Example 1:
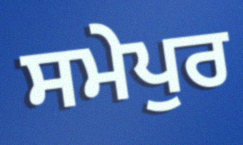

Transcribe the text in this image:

ਸਮੇਪੁਰ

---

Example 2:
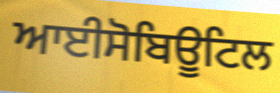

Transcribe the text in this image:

ਆਈਸੋਬਿਊਟਿਲ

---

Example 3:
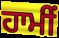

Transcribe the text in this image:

ਹਾਮੀਂ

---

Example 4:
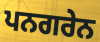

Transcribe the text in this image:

ਪਨਗਰੇਨ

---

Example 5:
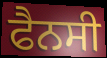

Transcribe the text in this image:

ਫੈਨਸੀ